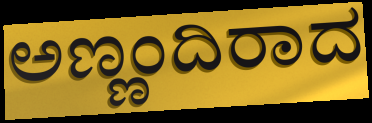
ಅಣ್ಣಂದಿರಾದ